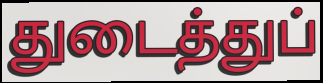
துடைத்துப்